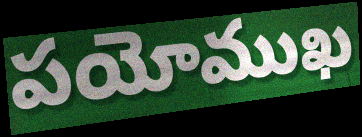
పయోముఖ